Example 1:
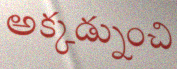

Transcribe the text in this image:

అక్కడ్నుంచి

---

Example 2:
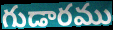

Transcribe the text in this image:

గుడారము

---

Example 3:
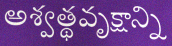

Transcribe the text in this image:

అశ్వత్థవృక్షాన్ని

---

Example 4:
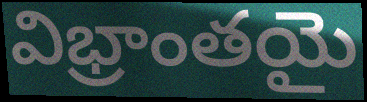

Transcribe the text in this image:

విభ్రాంతయై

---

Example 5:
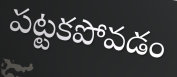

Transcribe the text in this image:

పట్టకపోవడం